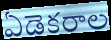
ఏడెకరాల